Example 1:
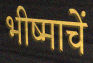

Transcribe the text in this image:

भीष्माचें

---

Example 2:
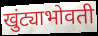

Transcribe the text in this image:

खुंट्याभोवती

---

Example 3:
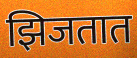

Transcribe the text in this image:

झिजतात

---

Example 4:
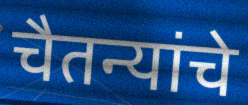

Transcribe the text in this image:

चैतन्यांचे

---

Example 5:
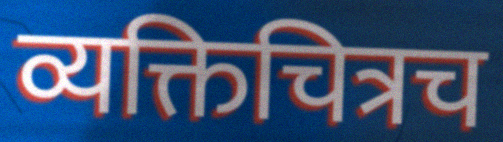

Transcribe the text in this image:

व्यक्तिचित्रच